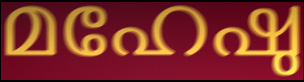
മഹേഷു